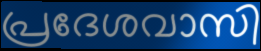
പ്രദേശവാസി